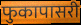
फुकापासरी